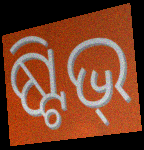
ଷ୍ଟିଭ୍